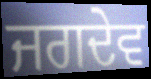
ਜਗਦੇਵ